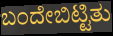
ಬಂದೇಬಿಟ್ಟಿತು